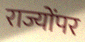
राज्योंपर